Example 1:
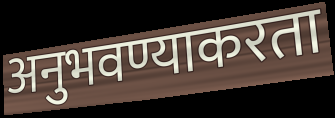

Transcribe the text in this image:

अनुभवण्याकरता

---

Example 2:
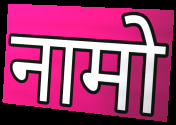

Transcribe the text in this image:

नामो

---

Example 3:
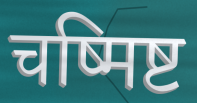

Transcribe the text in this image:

चष्मिष्ट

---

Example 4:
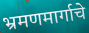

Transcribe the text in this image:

भ्रमणमार्गाचे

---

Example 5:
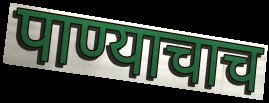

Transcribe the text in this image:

पाण्याचाच